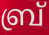
ബ്ര്